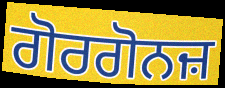
ਗੋਰਗੋਨਜ਼